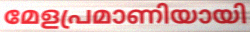
മേളപ്രമാണിയായി